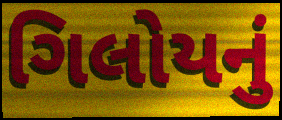
ગિલોયનું